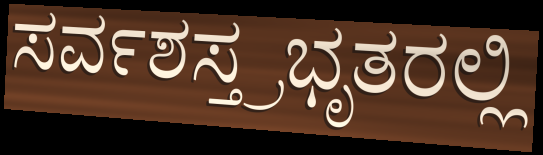
ಸರ್ವಶಸ್ತ್ರಭೃತರಲ್ಲಿ